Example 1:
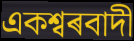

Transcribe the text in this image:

একশ্বৰবাদী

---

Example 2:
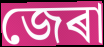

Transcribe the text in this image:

জেৰা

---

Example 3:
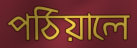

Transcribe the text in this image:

পঠিয়ালে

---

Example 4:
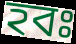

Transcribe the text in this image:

হবঃ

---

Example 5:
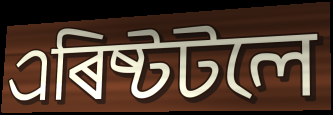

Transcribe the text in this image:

এৰিষ্টটলে